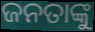
ଜନତାଙ୍କୁ